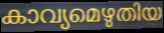
കാവ്യമെഴുതിയ